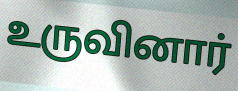
உருவினார்